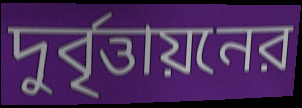
দুর্বৃত্তায়নের